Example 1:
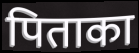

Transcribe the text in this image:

पिताका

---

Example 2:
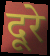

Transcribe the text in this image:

दूरे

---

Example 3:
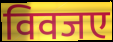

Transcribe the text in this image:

विवजए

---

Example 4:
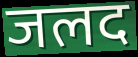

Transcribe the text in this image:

जलद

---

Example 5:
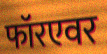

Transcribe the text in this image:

फॉरएवर